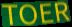
TOER